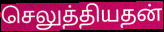
செலுத்தியதன்